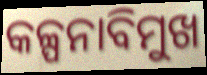
କଳ୍ପନାବିମୁଖ